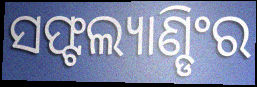
ସଫ୍ଟଲ୍ୟାଣ୍ଡିଂର